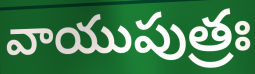
వాయుపుత్రః